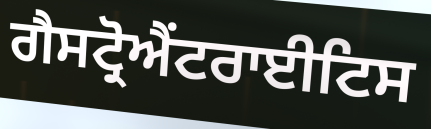
ਗੈਸਟ੍ਰੋਐਂਟਰਾਈਟਿਸ